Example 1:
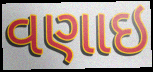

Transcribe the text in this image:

વણાઇ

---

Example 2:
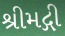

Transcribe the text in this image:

શ્રીમદ્ગી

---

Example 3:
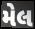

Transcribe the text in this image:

મેલ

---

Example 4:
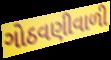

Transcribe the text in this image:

ગોઠવણીવાળી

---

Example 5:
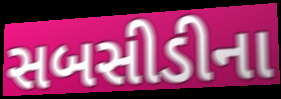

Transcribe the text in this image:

સબસીડીના